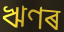
ঋণৰ